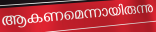
ആകണമെന്നായിരുന്നു